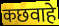
कछवाहे